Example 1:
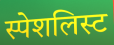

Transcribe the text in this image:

स्पेशलिस्ट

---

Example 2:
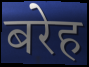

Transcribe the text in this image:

बरेह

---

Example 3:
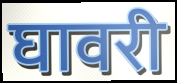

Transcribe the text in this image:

घावरी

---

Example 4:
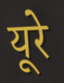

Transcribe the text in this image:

यूरे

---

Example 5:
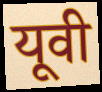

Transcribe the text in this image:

यूवी